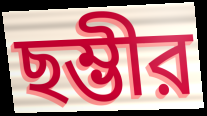
ছম্ভীর